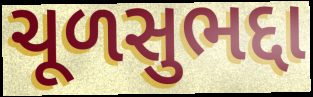
ચૂળસુભદ્દા